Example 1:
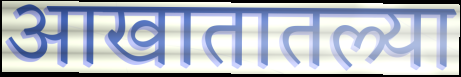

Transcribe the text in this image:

आखातातल्या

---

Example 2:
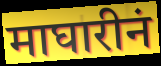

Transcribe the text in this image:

माघारीनं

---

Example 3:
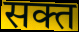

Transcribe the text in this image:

सक्त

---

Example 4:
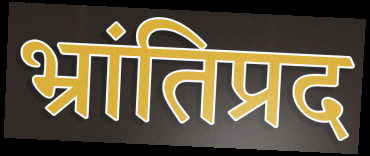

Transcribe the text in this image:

भ्रांतिप्रद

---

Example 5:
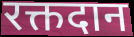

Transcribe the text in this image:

रक्तदान